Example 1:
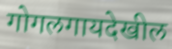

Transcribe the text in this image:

गोगलगायदेखील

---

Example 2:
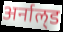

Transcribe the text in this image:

अर्नाल्ड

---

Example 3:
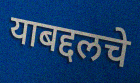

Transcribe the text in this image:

याबद्दलचे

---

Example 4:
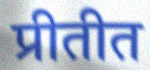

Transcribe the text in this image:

प्रीतीत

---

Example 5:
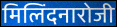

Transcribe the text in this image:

मिलिंदनारोजी